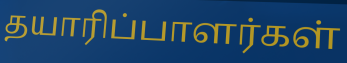
தயாரிப்பாளர்கள்